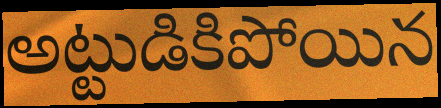
అట్టుడికిపోయిన